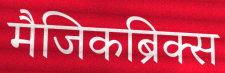
मैजिकब्रिक्स